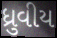
ધ્રુવીય